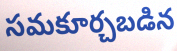
సమకూర్చబడిన